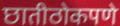
छातीठोकपणे